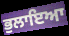
ਭੁਲਾਇਆ